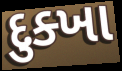
દુક્ખા